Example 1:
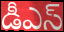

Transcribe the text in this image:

డీఎస్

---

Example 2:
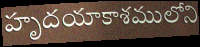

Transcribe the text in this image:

హృదయాకాశములోని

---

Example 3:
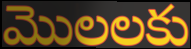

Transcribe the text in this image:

మొలలకు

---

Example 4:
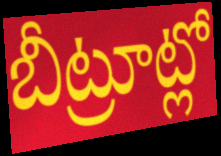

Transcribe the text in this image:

బీట్రూట్లో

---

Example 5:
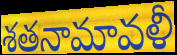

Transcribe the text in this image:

శతనామావళీ